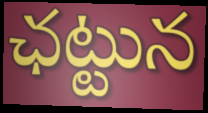
ఛట్టున